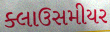
ક્લાઉસમીયર